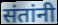
संतांनी